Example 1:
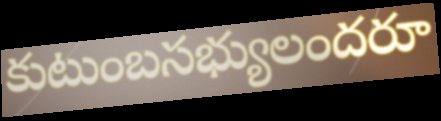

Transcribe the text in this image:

కుటుంబసభ్యులందరూ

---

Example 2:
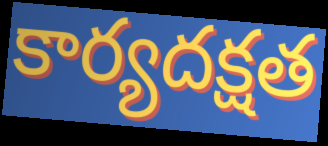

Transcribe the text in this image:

కార్యదక్షత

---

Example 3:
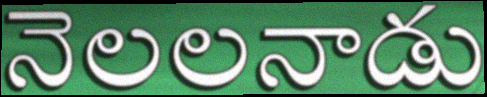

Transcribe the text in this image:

నెలలనాడు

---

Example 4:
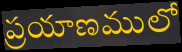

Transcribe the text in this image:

ప్రయాణములో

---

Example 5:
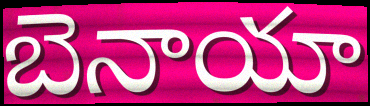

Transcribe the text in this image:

బెనాయా